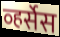
व्हर्सेस